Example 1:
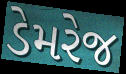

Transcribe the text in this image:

ડેમરેજ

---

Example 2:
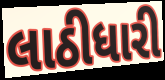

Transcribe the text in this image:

લાઠીધારી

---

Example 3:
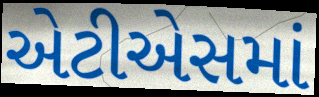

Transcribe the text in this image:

એટીએસમાં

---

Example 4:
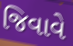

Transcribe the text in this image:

જિવાવે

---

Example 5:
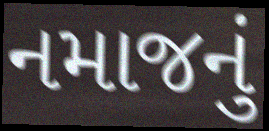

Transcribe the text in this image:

નમાજનું